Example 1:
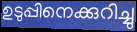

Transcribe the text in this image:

ഉടുപ്പിനെക്കുറിച്ചു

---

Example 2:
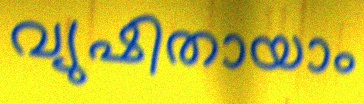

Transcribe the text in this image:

വ്യുഷിതായാം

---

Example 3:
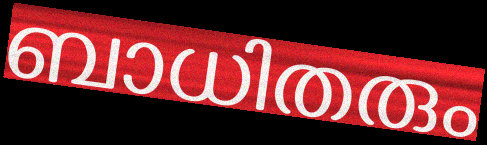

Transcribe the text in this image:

ബാധിതരും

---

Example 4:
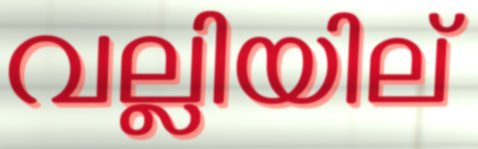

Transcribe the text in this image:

വല്ലിയില്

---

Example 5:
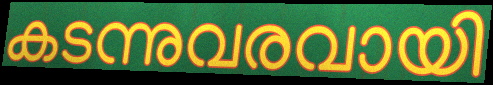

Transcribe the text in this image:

കടന്നുവരവായി